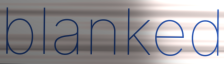
blanked